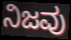
ನಿಜವು